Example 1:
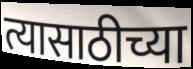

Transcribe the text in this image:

त्यासाठीच्या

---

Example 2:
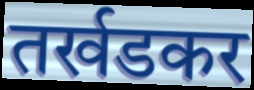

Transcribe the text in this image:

तर्खडकर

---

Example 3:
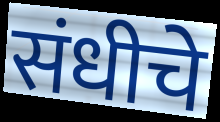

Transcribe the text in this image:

संधीचे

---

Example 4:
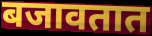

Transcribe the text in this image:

बजावतात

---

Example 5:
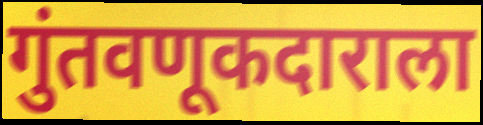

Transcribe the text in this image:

गुंतवणूकदाराला